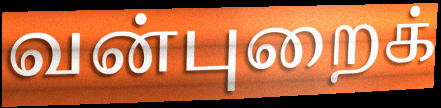
வன்புறைக்